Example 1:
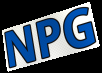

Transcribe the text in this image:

NPG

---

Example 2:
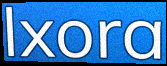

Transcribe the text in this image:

Ixora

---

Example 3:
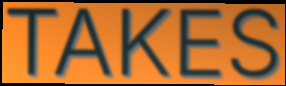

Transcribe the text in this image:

TAKES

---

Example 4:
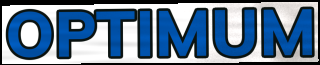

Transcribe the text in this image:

OPTIMUM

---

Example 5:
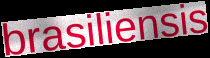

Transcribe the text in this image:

brasiliensis